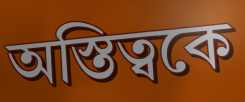
অস্তিত্বকে